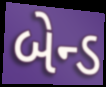
બેન્ડ